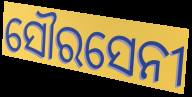
ସୌରସେନୀ